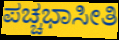
ಪಚ್ಚಭಾಸೀತಿ